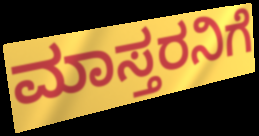
ಮಾಸ್ತರನಿಗೆ